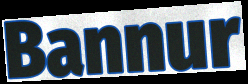
Bannur